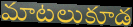
మాటలుకూడ